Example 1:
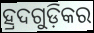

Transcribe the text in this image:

ହ୍ରଦଗୁଡ଼ିକର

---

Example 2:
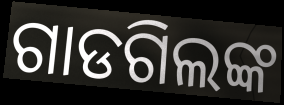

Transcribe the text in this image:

ଗାଡଗିଲଙ୍କ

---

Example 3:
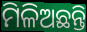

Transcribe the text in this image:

ମିଳିଅଛନ୍ତି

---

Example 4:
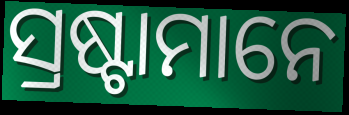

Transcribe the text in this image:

ସ୍ରଷ୍ଟାମାନେ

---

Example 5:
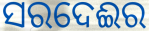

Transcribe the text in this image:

ସରଦେଈର